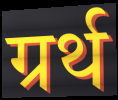
ग्रर्थ